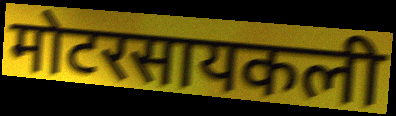
मोटरसायकली